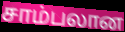
சாம்பலான